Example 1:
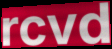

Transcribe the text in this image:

rcvd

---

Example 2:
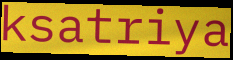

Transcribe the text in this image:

ksatriya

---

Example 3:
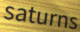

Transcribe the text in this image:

saturns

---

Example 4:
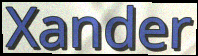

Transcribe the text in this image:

Xander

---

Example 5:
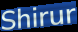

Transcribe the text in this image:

Shirur